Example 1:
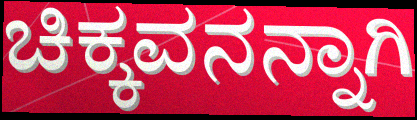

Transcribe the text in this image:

ಚಿಕ್ಕವನನ್ನಾಗಿ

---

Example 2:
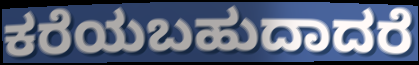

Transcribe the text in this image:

ಕರೆಯಬಹುದಾದರೆ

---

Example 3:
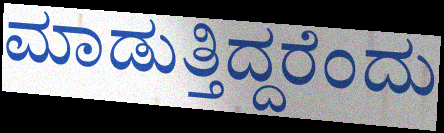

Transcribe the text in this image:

ಮಾಡುತ್ತಿದ್ದರೆಂದು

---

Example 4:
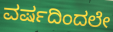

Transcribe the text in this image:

ವರ್ಷದಿಂದಲೇ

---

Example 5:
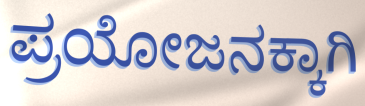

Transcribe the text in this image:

ಪ್ರಯೋಜನಕ್ಕಾಗಿ